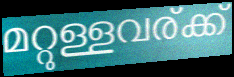
മറ്റുള്ളവര്ക്ക്